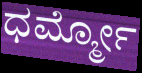
ಧರ್ಮ್ಮೋ